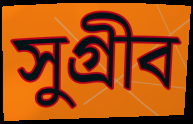
সুগ্রীব